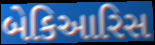
બેકિઆરિસ